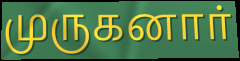
முருகனார்